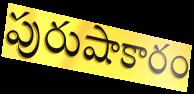
పురుషాకారం